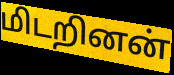
மிடறினன்